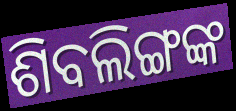
ଶିବଲିଙ୍ଗଙ୍କ